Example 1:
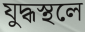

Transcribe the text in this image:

যুদ্ধস্থলে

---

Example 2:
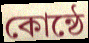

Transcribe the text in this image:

কোন্ঠে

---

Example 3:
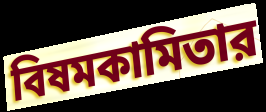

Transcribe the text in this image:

বিষমকামিতার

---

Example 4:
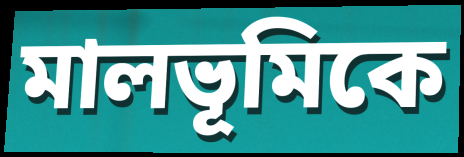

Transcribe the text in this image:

মালভূমিকে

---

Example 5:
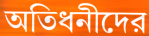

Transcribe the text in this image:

অতিধনীদের